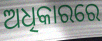
ଅଧିକାରରେ